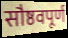
सौष्ठवपूर्ण